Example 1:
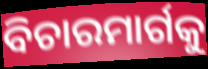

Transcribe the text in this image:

ବିଚାରମାର୍ଗକୁ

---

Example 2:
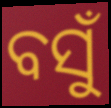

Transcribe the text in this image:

ବସୁଁ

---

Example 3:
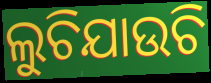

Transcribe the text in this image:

ଲୁଚିଯାଉଚି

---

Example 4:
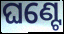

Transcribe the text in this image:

ଘଣ୍ଟେ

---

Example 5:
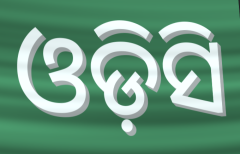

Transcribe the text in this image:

ଓଡ଼ିସି